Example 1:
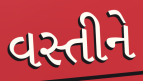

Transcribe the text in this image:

વસ્તીને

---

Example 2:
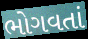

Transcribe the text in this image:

ભોગવતાં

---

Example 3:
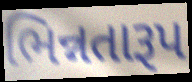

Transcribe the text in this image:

ભિન્નતારૂપ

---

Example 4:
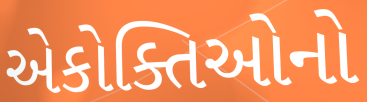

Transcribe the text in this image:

એકોક્તિઓનો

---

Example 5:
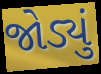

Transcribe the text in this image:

જોડ્યું